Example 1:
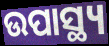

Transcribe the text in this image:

ଉପାସ୍ଥ୍ୟ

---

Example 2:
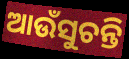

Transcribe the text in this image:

ଆଉଁସୁଚନ୍ତି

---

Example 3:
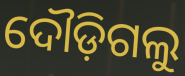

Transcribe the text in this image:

ଦୌଡ଼ିଗଲୁ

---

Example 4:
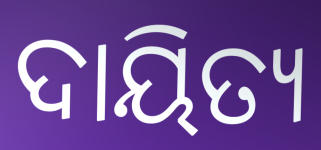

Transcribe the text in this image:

ଦାୟିତ୍ୟ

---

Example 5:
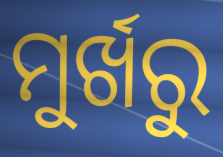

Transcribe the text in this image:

ମୁର୍ଖରୁ